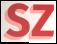
sz